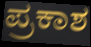
ಪ್ರಕಾಶ